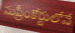
సుప్రీంకోర్టులోనే